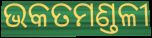
ଭକତମଣ୍ଡଳୀ